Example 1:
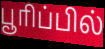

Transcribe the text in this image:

பூரிப்பில்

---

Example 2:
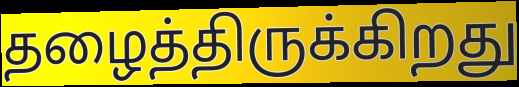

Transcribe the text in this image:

தழைத்திருக்கிறது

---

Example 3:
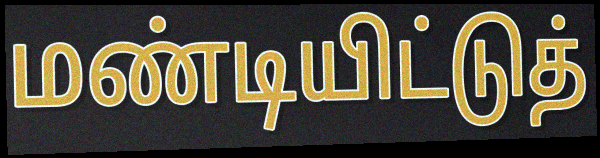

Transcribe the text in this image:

மண்டியிட்டுத்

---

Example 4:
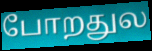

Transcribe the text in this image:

போறதுல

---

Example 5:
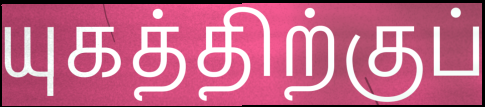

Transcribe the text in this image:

யுகத்திற்குப்